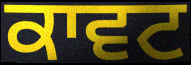
ਕਾਵਟ